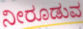
ನೀರೂಡುವ